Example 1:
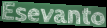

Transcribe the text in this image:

Esevanto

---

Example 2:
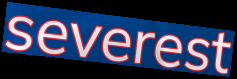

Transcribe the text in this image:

severest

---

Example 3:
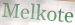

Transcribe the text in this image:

Melkote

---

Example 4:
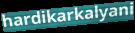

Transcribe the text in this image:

hardikarkalyani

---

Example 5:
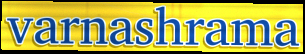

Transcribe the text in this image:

varnashrama